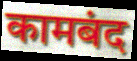
कामबंद